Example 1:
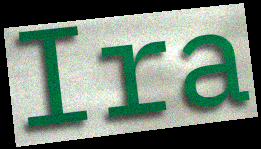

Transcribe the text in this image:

Ira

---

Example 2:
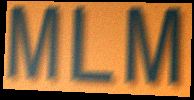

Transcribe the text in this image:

MLM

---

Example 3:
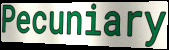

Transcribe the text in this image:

Pecuniary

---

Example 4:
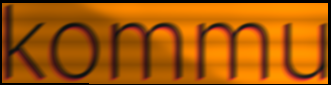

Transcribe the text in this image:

kommu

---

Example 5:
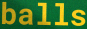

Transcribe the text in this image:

balls